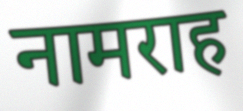
नामराह